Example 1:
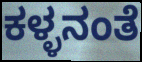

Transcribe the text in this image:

ಕಳ್ಳನಂತೆ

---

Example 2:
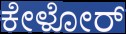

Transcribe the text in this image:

ಕೇಳೋರ್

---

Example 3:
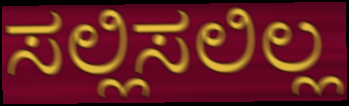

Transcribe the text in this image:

ಸಲ್ಲಿಸಲಿಲ್ಲ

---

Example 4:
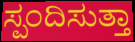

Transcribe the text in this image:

ಸ್ಪಂದಿಸುತ್ತಾ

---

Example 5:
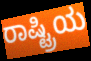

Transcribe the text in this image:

ರಾಷ್ಟ್ರಿಯ